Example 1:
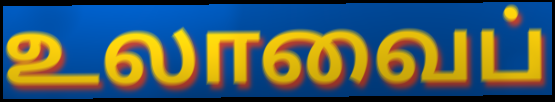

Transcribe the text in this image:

உலாவைப்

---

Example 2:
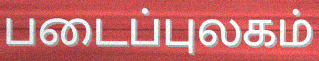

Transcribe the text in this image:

படைப்புலகம்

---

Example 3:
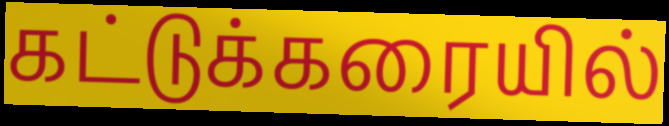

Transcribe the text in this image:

கட்டுக்கரையில்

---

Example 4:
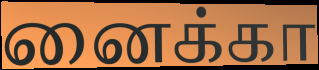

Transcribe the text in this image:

னைக்கா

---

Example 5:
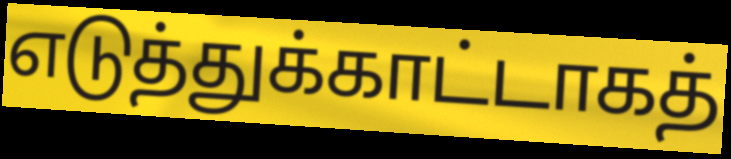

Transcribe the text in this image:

எடுத்துக்காட்டாகத்